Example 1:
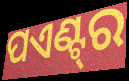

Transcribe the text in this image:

ପଏଣ୍ଟ୍‌ର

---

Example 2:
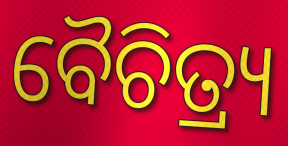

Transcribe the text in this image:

ବୈଚିତ୍ର୍ୟ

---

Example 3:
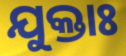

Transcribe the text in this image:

ଯୁକ୍ତାଃ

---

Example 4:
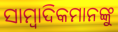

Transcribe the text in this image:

ସାମ୍ବାଦିକମାନଙ୍କୁ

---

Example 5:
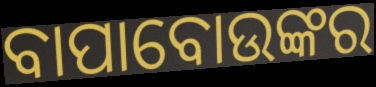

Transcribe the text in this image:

ବାପାବୋଉଙ୍କର